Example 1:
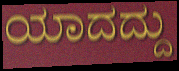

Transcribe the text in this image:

ಯಾದದ್ದು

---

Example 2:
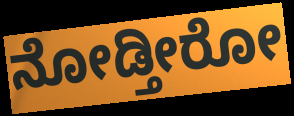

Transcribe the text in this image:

ನೋಡ್ತೀರೋ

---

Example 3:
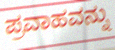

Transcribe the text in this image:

ಪ್ರವಾಹವನ್ನು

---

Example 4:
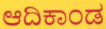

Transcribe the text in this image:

ಆದಿಕಾಂಡ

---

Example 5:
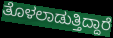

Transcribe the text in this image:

ತೊಳಲಾಡುತ್ತಿದ್ದಾರೆ